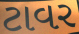
ટાવર